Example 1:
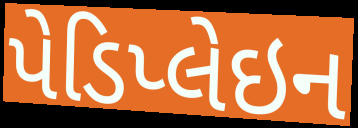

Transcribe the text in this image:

પેડિપ્લેઇન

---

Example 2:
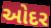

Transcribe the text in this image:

ઓદર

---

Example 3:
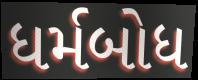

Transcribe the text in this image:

ધર્મબોધ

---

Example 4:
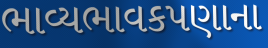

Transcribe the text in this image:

ભાવ્યભાવકપણાના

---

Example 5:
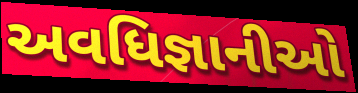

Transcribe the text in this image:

અવધિજ્ઞાનીઓ